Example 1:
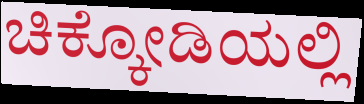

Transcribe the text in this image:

ಚಿಕ್ಕೋಡಿಯಲ್ಲಿ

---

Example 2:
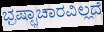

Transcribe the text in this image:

ಭ್ರಷ್ಟಾಚಾರವಿಲ್ಲದೆ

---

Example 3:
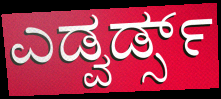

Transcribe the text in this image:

ಎಡ್ವರ್ಡ್ಸ್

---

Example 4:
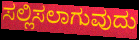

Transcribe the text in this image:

ಸಲ್ಲಿಸಲಾಗುವುದು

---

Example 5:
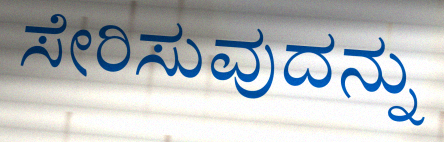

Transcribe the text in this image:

ಸೇರಿಸುವುದನ್ನು